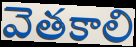
వెతకాలి